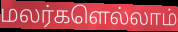
மலர்களெல்லாம்